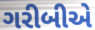
ગરીબીએ